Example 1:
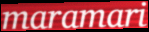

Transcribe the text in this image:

maramari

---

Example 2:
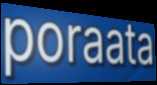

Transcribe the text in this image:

poraata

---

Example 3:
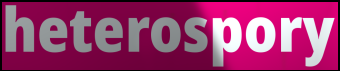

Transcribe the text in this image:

heterospory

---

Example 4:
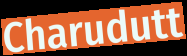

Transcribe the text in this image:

Charudutt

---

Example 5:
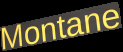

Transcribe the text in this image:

Montane